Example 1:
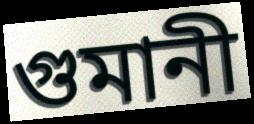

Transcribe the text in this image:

গুমানী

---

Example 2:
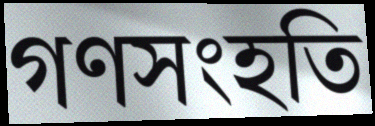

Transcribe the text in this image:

গণসংহতি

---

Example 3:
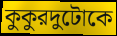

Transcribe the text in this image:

কুকুরদুটোকে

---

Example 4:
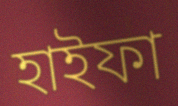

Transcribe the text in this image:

হাইফা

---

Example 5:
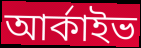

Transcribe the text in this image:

আর্কাইভ